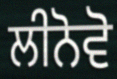
ਲੀਨੋਵੋ